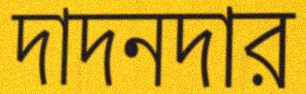
দাদনদার